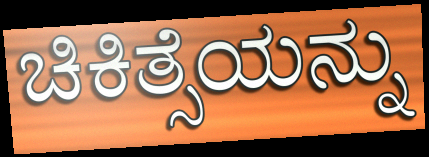
ಚಿಕಿತ್ಸೆಯನ್ನು